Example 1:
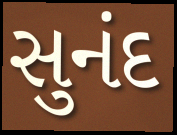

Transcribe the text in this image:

સુનંદ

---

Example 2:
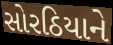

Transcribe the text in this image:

સોરઠિયાને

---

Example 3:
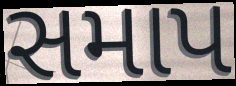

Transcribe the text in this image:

સમાપ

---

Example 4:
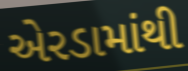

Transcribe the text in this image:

એરડામાંથી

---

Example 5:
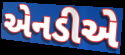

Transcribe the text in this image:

એનડીએ